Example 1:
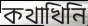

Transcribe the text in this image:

কথাখিনি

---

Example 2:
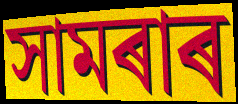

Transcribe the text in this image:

সামৰাৰ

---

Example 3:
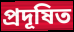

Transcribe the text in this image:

প্ৰদূষিত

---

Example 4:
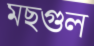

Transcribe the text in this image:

মছগুল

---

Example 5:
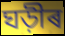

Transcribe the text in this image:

ঘড়ীৰ